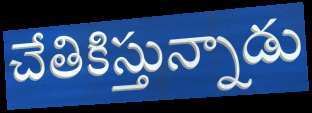
చేతికిస్తున్నాడు